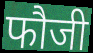
फौजी